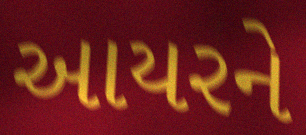
આયરને